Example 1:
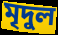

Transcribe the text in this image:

মৃদুল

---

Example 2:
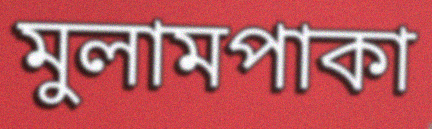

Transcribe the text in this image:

মুলামপাকা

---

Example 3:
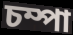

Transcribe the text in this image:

চম্পা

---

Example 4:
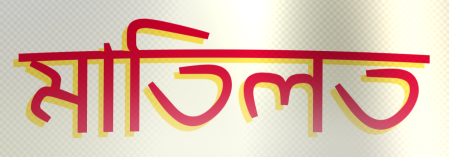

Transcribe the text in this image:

মাতিলত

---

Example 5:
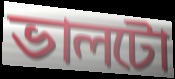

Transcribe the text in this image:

ভালটো